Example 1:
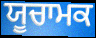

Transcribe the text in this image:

ਯੂਚਾਮਕ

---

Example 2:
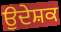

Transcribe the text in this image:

ਉਦੇਸ਼ਕ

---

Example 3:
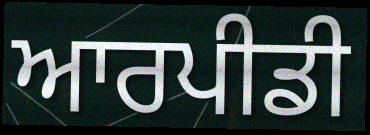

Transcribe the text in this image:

ਆਰਪੀਡੀ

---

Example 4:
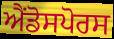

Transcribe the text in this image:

ਐਂਡੋਸਪੋਰਸ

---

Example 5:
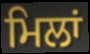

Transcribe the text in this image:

ਮਿਲਾਂ